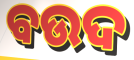
ବଉଦ